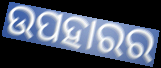
ଉପହାରର